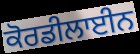
ਕੋਰਡੀਲਾਈਨ